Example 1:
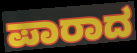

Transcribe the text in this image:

ಪಾರಾದ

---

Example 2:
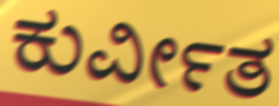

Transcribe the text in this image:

ಕುರ್ವೀತ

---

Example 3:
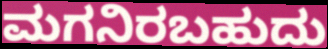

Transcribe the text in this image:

ಮಗನಿರಬಹುದು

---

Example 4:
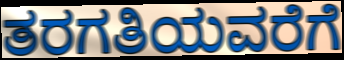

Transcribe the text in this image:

ತರಗತಿಯವರೆಗೆ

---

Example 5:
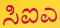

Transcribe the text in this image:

ಸಿಐಎ